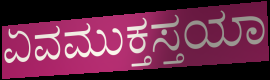
ಏವಮುಕ್ತಸ್ತಯಾ